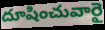
దూషించువారై